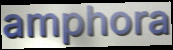
amphora